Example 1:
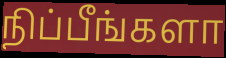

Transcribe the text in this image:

நிப்பீங்களா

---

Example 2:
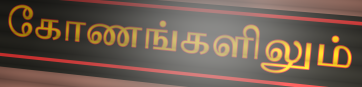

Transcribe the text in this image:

கோணங்களிலும்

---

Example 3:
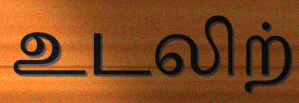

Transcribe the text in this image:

உடலிற்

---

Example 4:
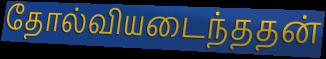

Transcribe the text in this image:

தோல்வியடைந்ததன்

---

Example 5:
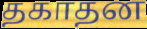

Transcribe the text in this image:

தகாதன